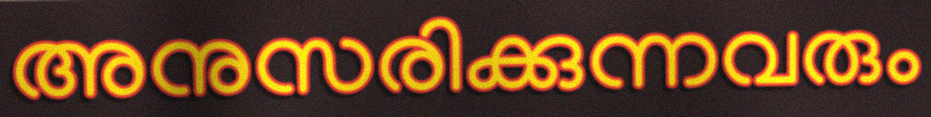
അനുസരിക്കുന്നവരും